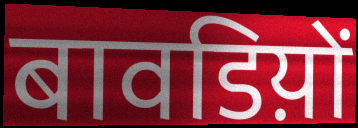
बावडिय़ों